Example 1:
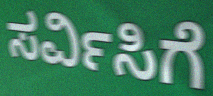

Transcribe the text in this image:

ಸರ್ವಿಸಿಗೆ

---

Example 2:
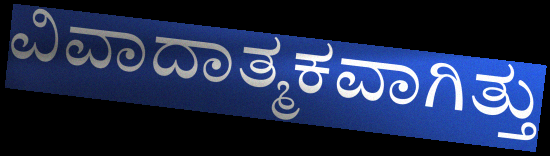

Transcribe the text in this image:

ವಿವಾದಾತ್ಮಕವಾಗಿತ್ತು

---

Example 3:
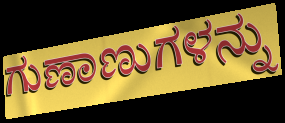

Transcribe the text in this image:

ಗುಣಾಣುಗಳನ್ನು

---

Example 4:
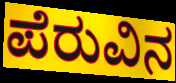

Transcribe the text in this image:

ಪೆರುವಿನ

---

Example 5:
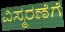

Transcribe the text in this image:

ವಿಸ್ಮರಣೆಗೆ